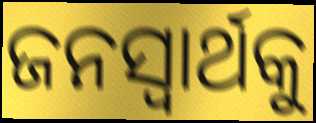
ଜନସ୍ବାର୍ଥକୁ